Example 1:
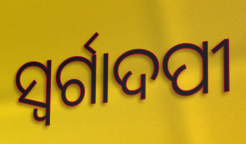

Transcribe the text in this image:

ସ୍ବର୍ଗାଦପୀ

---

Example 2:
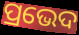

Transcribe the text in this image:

ପ୍ରଭେଦ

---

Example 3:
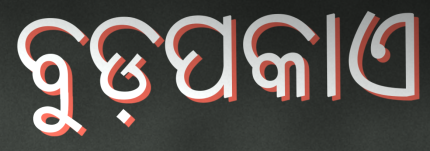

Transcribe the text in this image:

ବୁଡ଼ପକାଏ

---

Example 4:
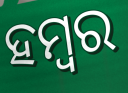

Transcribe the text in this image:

ହମ୍ବର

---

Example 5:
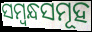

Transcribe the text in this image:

ସମ୍ୱନ୍ଧସମୂହ